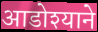
आडोश्याने